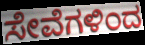
ಸೇವೆಗಳಿಂದ